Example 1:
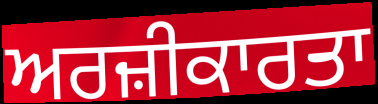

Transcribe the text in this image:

ਅਰਜ਼ੀਕਾਰਤਾ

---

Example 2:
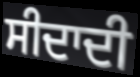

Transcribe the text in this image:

ਸੀਦਾਦੀ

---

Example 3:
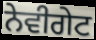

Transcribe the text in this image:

ਨੇਵੀਗੇਟ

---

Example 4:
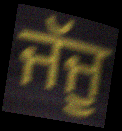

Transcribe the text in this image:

ਜੱਜੂ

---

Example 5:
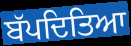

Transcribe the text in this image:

ਬੱਪਦਿਤਿਆ